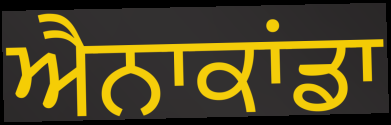
ਐਨਾਕਾਂਡਾ